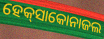
ହେକ୍‌ସାକୋନାଜଲ